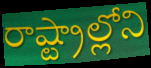
రాష్ట్రాల్లోని